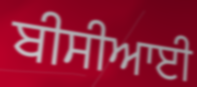
ਬੀਸੀਆਈ